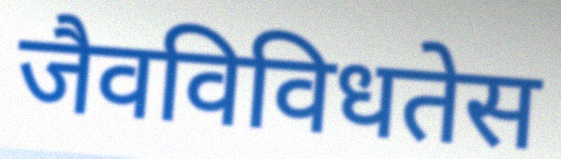
जैवविविधतेस